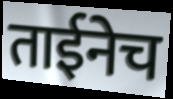
ताईनेच